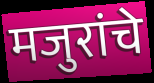
मजुरांचे